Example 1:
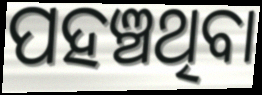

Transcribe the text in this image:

ପହଞ୍ଚଥିବା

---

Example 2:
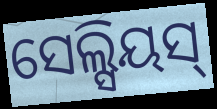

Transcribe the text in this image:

ସେଲ୍ସିୟସ୍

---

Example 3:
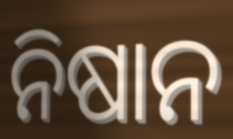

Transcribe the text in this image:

ନିଷାନ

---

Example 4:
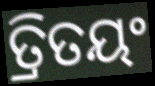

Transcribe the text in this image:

ତ୍ରିତୟଂ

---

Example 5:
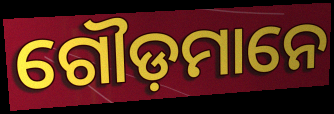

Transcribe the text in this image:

ଗୌଡ଼ମାନେ